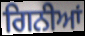
ਗਿਨੀਆਂ